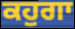
ਕਹੁਗਾ